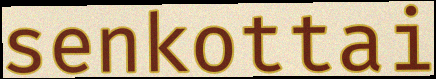
senkottai